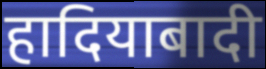
हादियाबादी